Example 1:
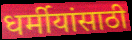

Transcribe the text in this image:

धर्मीयांसाठी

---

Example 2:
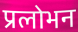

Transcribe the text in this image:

प्रलोभन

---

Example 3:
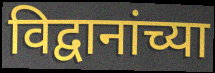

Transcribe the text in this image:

विद्वानांच्या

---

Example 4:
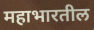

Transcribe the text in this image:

महाभारतील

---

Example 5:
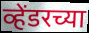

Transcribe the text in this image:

व्हेंडरच्या